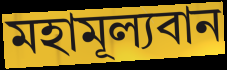
মহামূল্যবান